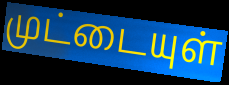
முட்டையுள்